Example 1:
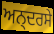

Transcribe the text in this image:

ਅਨ੍ਦਰਸੇ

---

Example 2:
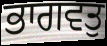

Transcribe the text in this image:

ਭਾਗਵਤੁ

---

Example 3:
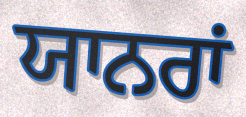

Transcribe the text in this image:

ਯਾਨਰਾਂ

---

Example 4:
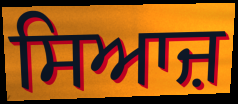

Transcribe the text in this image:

ਸਿਆਜ਼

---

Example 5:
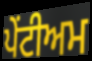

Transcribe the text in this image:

ਪੇਂਟੀਅਮ